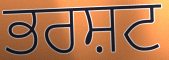
ਭਰਸ਼ਟ